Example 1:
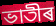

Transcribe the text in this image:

ভাতীৰ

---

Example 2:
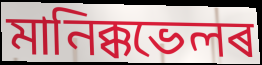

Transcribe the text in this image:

মানিক্কভেলৰ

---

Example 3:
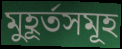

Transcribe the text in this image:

মুহূৰ্তসমূহ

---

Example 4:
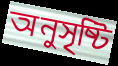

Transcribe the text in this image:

অনুসৃষ্টি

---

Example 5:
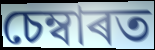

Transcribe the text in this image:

চেম্বাৰত